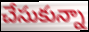
చేసుకున్నా